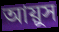
আয়ুস